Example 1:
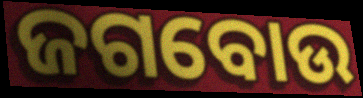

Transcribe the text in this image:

ଜଗବୋଉ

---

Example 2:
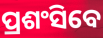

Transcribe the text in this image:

ପ୍ରଶଂସିବେ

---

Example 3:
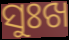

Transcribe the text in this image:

ସୁଃଖ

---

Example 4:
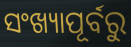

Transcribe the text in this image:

ସଂଖ୍ୟାପୂର୍ବରୁ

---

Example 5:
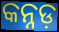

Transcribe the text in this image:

କନ୍ନଡ଼